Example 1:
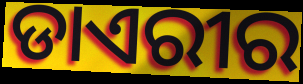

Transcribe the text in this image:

ଡାଏରୀର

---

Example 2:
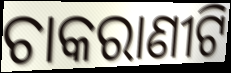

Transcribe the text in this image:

ଚାକରାଣୀଟି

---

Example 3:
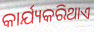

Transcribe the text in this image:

କାର୍ଯ୍ୟକରିଥାଏ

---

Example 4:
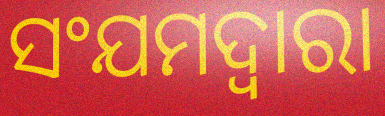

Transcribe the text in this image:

ସଂଯମଦ୍ୱାରା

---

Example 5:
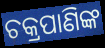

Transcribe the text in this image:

ଚକ୍ରପାଣିଙ୍କ